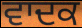
ਵਾਦਕ